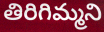
తిరిగిమ్మని